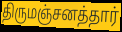
திருமஞ்சனத்தார்